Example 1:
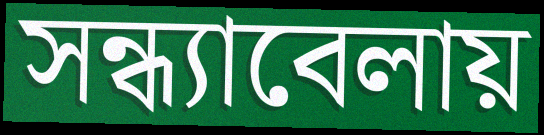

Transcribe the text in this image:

সন্ধ্যাবেলায়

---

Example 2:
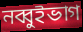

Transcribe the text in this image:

নব্বুইভাগ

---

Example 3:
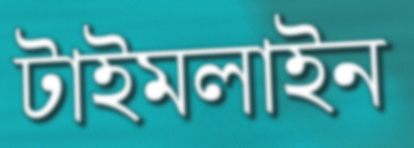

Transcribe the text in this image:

টাইমলাইন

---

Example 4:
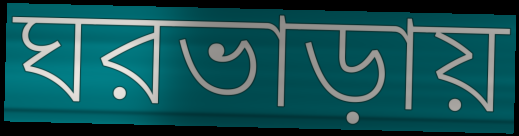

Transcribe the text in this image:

ঘরভাড়ায়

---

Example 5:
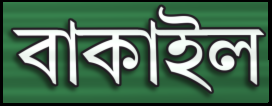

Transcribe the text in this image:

বাকাইল